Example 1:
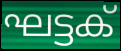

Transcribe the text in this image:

ഘട്ടക്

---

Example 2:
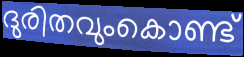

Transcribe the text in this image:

ദുരിതവുംകൊണ്ട്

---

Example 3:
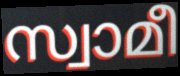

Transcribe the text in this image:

സ്വാമീ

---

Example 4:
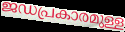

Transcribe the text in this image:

ജഡപ്രകാരമുള്ള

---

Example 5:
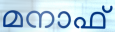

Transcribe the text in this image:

മനാഫ്